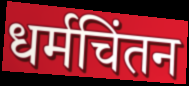
धर्मचिंतन